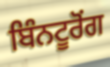
ਬਿੰਨਟੂਰੋਂਗ